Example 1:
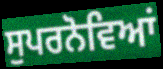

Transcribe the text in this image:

ਸੁਪਰਨੋਵਿਆਂ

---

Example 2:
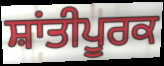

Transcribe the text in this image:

ਸ਼ਾਂਤੀਪੂਰਕ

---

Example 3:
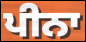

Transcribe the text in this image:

ਪੀਨਾ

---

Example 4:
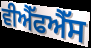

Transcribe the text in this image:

ਵੀਐੱਫਐੱਸ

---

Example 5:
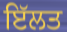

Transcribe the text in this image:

ਇੱਲਤ